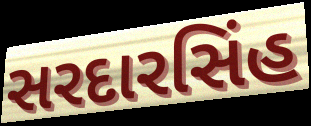
સરદારસિંહ